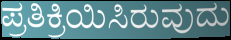
ಪ್ರತಿಕ್ರಿಯಿಸಿರುವುದು